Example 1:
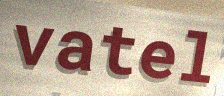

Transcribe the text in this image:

vatel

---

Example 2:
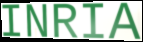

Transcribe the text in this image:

INRIA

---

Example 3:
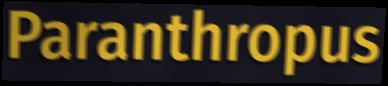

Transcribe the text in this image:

Paranthropus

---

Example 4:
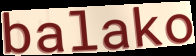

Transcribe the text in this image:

balako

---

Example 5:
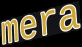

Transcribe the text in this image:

mera